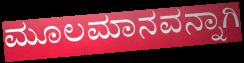
ಮೂಲಮಾನವನ್ನಾಗಿ